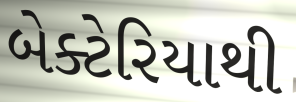
બેક્ટેરિયાથી